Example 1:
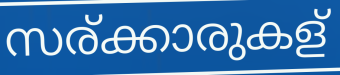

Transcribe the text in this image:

സര്ക്കാരുകള്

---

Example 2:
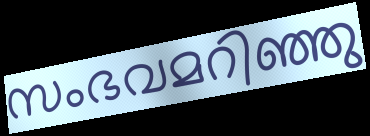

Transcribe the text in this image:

സംഭവമറിഞ്ഞു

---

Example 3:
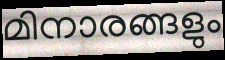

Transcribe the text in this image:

മിനാരങ്ങളും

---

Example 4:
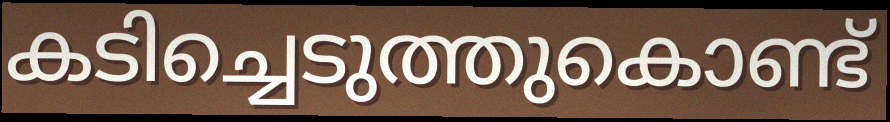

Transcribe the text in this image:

കടിച്ചെടുത്തുകൊണ്ട്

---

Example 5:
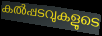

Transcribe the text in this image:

കൽപ്പടവുകളുടെ